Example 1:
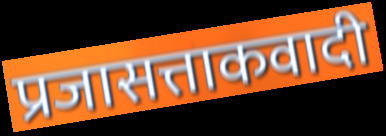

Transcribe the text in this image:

प्रजासत्ताकवादी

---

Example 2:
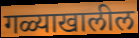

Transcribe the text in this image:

गळ्याखालील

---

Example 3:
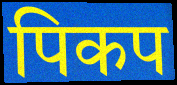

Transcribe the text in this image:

पिकप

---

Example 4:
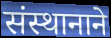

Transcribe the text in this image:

संस्थानाने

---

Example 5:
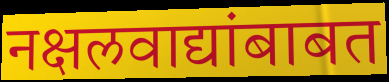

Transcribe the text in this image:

नक्षलवाद्यांबाबत